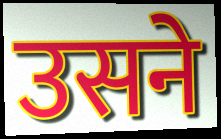
उसने